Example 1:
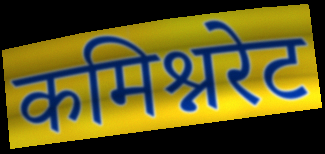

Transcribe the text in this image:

कमिश्नरेट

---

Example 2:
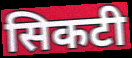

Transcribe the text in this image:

सिकटी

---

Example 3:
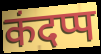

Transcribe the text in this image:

कंदप्प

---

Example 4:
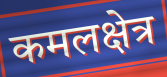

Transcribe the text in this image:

कमलक्षेत्र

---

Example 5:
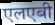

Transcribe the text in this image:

एलएबी